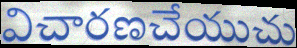
విచారణచేయుచు